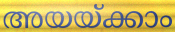
അയയ്ക്കാം